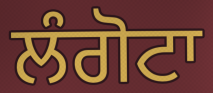
ਲੰਗੋਟਾ